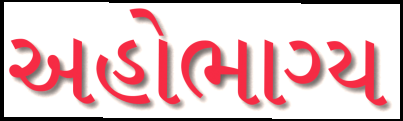
અહોભાગ્ય